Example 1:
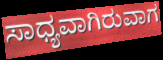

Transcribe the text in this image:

ಸಾಧ್ಯವಾಗಿರುವಾಗ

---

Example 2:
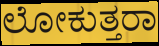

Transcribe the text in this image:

ಲೋಕುತ್ತರಾ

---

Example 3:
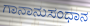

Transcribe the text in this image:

ಗಾನಾನುಸಂಧಾನ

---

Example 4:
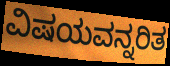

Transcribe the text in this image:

ವಿಷಯವನ್ನರಿತ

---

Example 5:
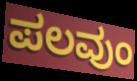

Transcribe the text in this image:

ಪಲವುಂ